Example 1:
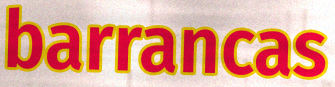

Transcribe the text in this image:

barrancas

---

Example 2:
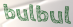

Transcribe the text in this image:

bulbul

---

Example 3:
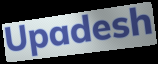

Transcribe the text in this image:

Upadesh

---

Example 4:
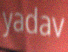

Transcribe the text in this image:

yadav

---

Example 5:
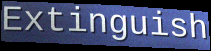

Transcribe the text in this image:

Extinguish